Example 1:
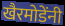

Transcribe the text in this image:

खैरमोडेंनी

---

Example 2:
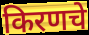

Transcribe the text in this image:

किरणचे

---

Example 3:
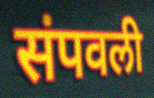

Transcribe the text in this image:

संपवली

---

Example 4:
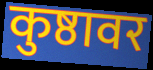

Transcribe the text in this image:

कुष्ठावर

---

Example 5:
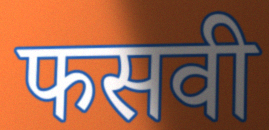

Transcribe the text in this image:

फसवी